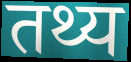
तथ्य